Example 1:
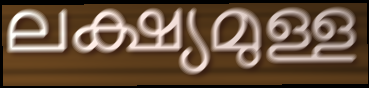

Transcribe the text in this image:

ലക്ഷ്യമുള്ള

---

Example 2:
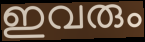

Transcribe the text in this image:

ഇവരും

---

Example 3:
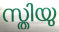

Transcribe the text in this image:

സ്തിയു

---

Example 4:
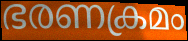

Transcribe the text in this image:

ഭരണക്രമം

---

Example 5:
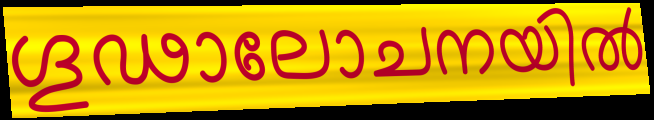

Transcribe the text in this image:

ഗൂഢാലോചനയിൽ